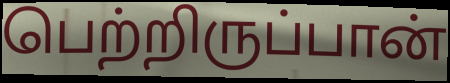
பெற்றிருப்பான்